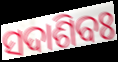
ସଦାଶିବଃ